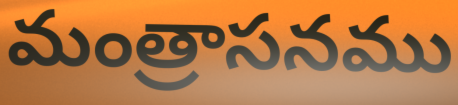
మంత్రాసనము